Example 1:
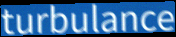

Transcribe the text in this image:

turbulance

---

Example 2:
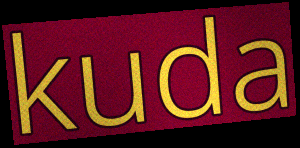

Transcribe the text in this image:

kuda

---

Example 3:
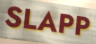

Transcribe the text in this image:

SLAPP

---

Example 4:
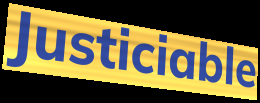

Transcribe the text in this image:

Justiciable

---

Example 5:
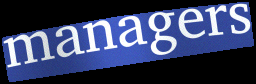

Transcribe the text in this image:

managers